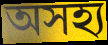
অসহ্য